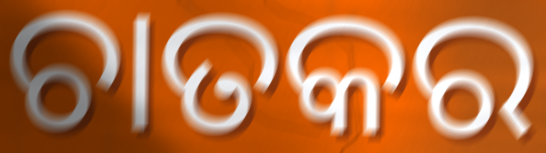
ଚାତକର